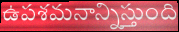
ఉపశమనాన్నిస్తుంది